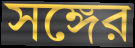
সঙ্গের